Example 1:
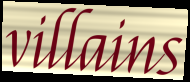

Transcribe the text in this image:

villains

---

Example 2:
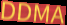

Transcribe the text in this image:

DDMA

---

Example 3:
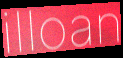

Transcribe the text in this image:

illoan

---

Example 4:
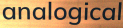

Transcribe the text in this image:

analogical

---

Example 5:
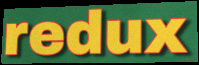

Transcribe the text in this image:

redux